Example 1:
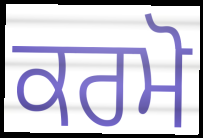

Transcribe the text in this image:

ਕਰਮੋ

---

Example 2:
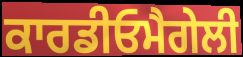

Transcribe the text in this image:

ਕਾਰਡੀਓਮੈਗੇਲੀ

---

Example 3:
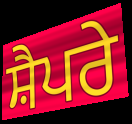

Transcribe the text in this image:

ਸ਼ੈਪਰੇ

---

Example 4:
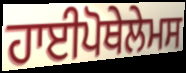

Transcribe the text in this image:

ਹਾਈਪੋਥੇਲੇਮਸ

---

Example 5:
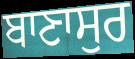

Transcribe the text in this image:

ਬਾਣਾਸੁਰ